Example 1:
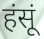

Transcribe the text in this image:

हंसूं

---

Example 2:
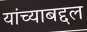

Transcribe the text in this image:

यांच्याबद्दल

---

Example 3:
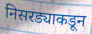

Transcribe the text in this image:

निसरड्याकडून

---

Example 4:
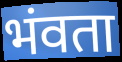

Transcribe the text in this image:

भंवता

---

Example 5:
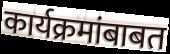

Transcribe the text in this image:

कार्यक्रमांबाबत